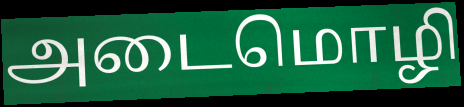
அடைமொழி